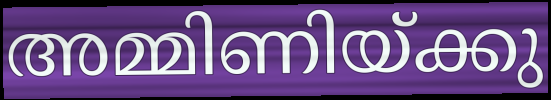
അമ്മിണിയ്ക്കു